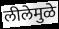
लीलेमुळे